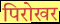
पिरोखर